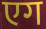
एग